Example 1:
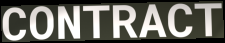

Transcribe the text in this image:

CONTRACT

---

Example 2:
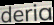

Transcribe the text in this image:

deria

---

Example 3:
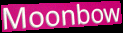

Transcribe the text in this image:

Moonbow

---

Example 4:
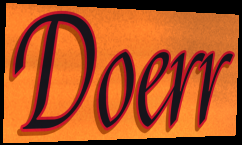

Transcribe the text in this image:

Doerr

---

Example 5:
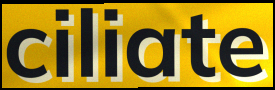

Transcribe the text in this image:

ciliate